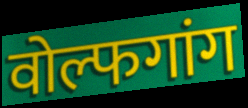
वोल्फगांग